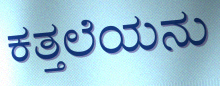
ಕತ್ತಲೆಯನು